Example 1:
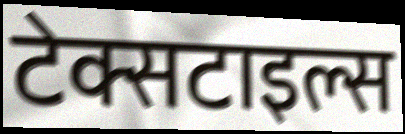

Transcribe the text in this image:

टेक्सटाइल्स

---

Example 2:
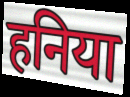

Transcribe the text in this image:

हनिया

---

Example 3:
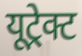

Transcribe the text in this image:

यूट्रेक्ट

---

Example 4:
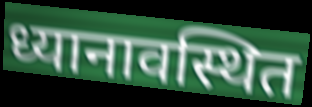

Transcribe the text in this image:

ध्यानावस्थित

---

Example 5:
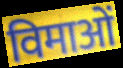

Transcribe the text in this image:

विमाओं